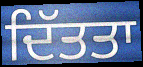
ਦਿੱਤਤਾ